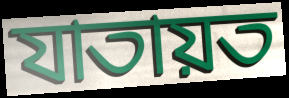
যাতায়ত